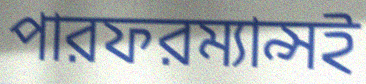
পারফরম্যান্সই